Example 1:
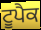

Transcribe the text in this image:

ਟੂਪੈਕ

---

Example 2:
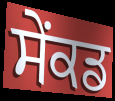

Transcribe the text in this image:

ਸੇਂਕਡ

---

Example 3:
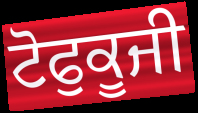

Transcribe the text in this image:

ਟੋਫੁਕੂਜੀ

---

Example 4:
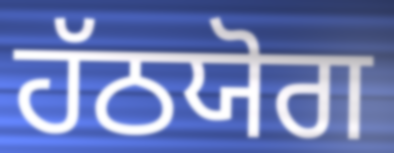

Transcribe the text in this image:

ਹੱਠਯੋਗ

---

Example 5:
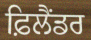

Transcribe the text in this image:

ਫ਼ਿਲੈਂਡਰ